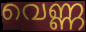
വെണ്ണ